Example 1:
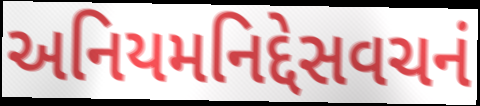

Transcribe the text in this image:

અનિયમનિદ્દેસવચનં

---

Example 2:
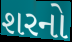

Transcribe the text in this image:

શરનો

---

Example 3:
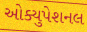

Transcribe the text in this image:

ઓક્યુપેશનલ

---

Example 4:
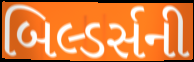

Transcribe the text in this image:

બિલ્ડર્સની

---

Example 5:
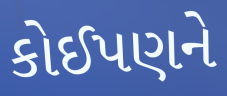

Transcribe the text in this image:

કોઈપણને